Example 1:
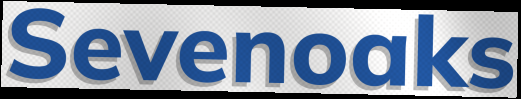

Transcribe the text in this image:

Sevenoaks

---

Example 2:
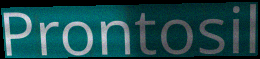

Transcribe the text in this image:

Prontosil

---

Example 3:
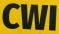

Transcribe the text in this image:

CWI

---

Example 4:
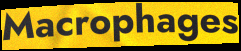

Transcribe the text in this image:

Macrophages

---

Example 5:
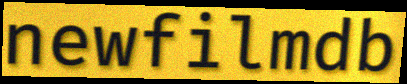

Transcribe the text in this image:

newfilmdb